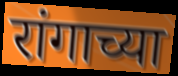
रांगाच्या